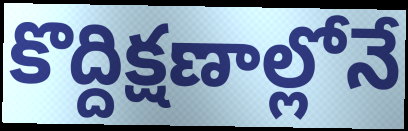
కొద్దిక్షణాల్లోనే